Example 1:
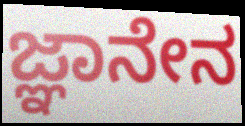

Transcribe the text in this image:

ಜ್ಞಾನೇನ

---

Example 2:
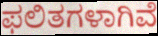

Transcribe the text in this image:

ಫಲಿತಗಳಾಗಿವೆ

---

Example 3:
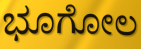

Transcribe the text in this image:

ಭೂಗೋಲ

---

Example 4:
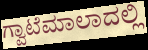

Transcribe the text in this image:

ಗ್ವಾಟೆಮಾಲಾದಲ್ಲಿ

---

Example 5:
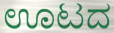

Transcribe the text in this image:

ಊಟದ